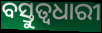
ବସ୍ତୁତ୍ୱଧାରୀ